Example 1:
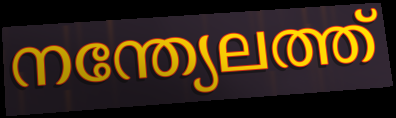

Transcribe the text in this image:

നന്ത്യേലത്ത്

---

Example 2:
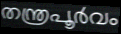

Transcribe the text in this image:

തന്ത്രപൂർവം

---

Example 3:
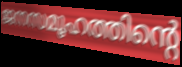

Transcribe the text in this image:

ജനസമൂഹത്തിന്റെ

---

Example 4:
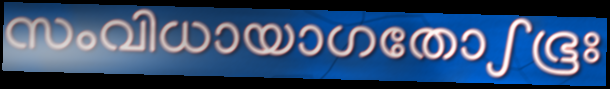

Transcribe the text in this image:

സംവിധായാഗതോഽഭൂഃ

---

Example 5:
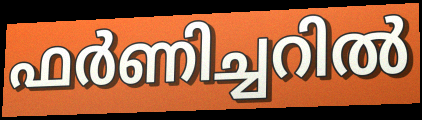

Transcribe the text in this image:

ഫർണിച്ചറിൽ